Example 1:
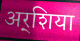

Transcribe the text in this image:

अर्शिया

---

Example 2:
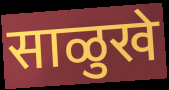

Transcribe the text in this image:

साळुखे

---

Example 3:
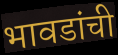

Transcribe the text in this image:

भावडांची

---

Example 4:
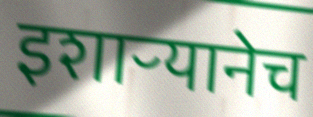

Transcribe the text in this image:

इशाऱ्यानेच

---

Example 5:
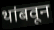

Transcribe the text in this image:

थांबवून